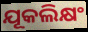
ଯୂକଲିକ୍ଷଂ